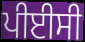
ਪੀਈਸੀ